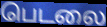
பெடலை